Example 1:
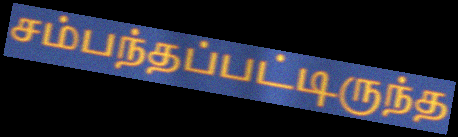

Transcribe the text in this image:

சம்பந்தப்பட்டிருந்த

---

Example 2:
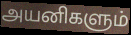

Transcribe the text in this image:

அயனிகளும்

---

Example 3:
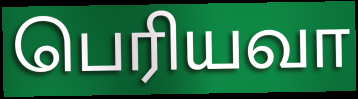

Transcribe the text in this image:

பெரியவா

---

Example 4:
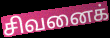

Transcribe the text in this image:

சிவனைக்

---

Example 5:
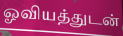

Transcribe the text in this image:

ஓவியத்துடன்